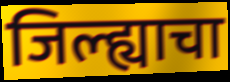
जिल्ह्याचा